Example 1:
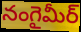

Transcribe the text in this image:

నంగైమీర్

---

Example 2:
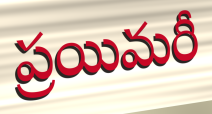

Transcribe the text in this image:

ప్రయిమరీ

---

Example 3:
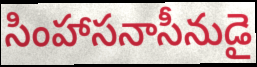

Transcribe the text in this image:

సింహాసనాసీనుడై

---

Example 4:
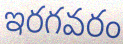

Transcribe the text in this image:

ఇరగవరం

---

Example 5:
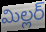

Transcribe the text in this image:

మిల్లర్